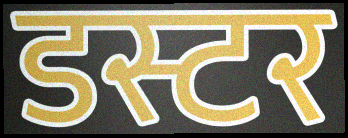
डस्टर